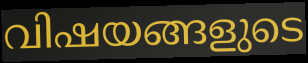
വിഷയങ്ങളുടെ